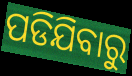
ପଡିଯିବାରୁ